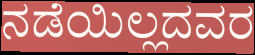
ನಡೆಯಿಲ್ಲದವರ